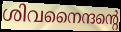
ശിവനൈന്ദന്റെ